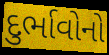
દુર્ભાવોનો